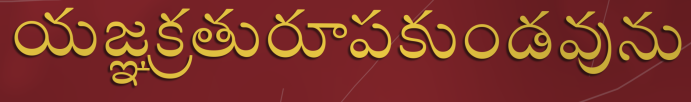
యజ్ఞక్రతురూపకుండవును